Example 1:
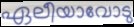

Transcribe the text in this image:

ഏലീയാവോടു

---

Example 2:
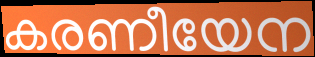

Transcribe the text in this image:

കരണീയേന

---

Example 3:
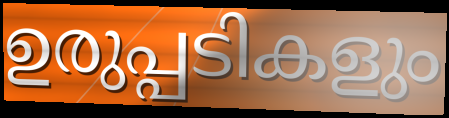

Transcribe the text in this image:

ഉരുപ്പടികളും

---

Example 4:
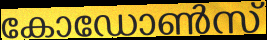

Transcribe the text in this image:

കോഡോൺസ്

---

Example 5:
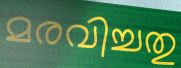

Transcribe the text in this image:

മരവിച്ചതു